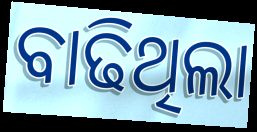
ବାଢିଥିଲା